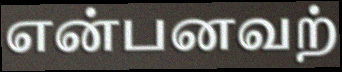
என்பனவற்